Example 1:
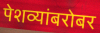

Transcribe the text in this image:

पेशव्यांबरोबर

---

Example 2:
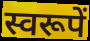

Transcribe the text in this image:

स्वरूपें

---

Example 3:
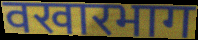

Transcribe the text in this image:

वखारभाग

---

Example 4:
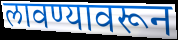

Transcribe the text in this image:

लावण्यावरून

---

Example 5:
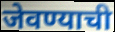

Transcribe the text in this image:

जेवण्याची